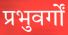
प्रभुवर्गों